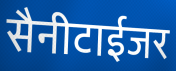
सैनीटाईजर